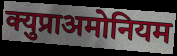
क्युप्राअमोनियम